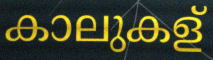
കാലുകള്